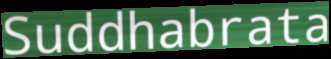
Suddhabrata